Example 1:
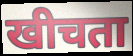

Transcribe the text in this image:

खीचता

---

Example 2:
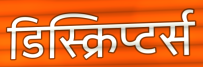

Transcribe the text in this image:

डिस्क्रिप्टर्स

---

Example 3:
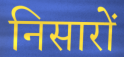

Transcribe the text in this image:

निसारों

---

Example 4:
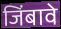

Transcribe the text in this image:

जिंबावे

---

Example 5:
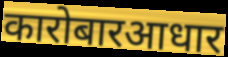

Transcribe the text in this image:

कारोबारआधार